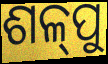
ଶଳ୍‍ପୁ